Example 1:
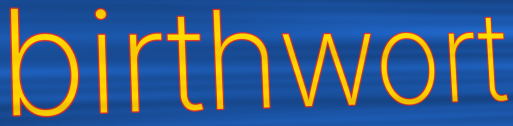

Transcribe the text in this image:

birthwort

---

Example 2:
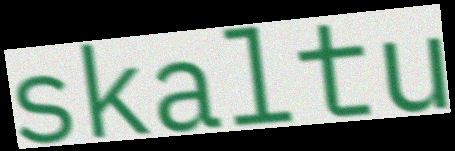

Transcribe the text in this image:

skaltu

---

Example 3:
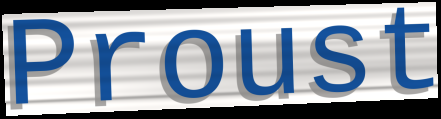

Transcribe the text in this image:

Proust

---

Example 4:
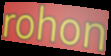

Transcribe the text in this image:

rohon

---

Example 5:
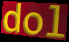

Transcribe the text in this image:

dol